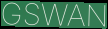
GSWAN